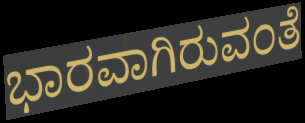
ಭಾರವಾಗಿರುವಂತೆ